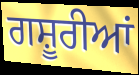
ਗਸ਼ੂਰੀਆਂ